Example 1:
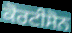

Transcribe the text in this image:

ਕੋਰਟੀਸੋਨ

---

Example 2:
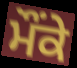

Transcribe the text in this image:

ਮੌੰਕੇ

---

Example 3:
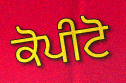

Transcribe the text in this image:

ਕੋਪੀਟੋ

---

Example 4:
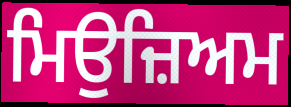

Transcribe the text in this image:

ਮਿਉਜ਼ਿਅਮ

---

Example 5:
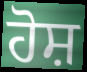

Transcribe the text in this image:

ਹੋਸ਼